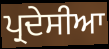
ਪ੍ਰਦੇਸੀਆ